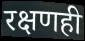
रक्षणही